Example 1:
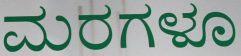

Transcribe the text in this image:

ಮರಗಳೂ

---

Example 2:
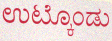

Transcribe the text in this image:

ಉಟ್ಕೊಂಡು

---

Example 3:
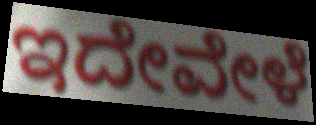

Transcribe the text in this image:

ಇದೇವೇಳೆ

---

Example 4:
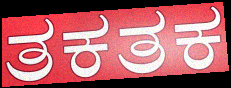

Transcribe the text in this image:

ತಕತಕ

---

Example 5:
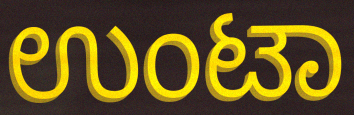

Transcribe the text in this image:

ಉಂಟಾ